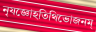
নৃযজ্ঞোহতিথিভোজনম্